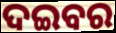
ଦଇବର